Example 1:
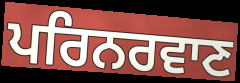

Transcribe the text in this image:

ਪਰਿਨਰਵਾਣ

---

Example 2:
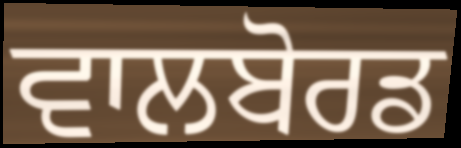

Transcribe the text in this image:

ਵਾਲਬੋਰਡ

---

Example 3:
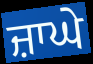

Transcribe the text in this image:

ਜ਼ਾਘੇ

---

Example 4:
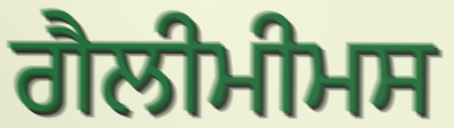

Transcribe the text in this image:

ਗੈਲੀਮੀਮਸ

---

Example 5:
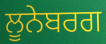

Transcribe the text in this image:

ਲੂਨੇਬਰਗ